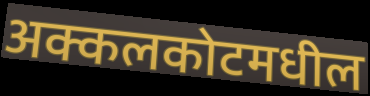
अक्कलकोटमधील